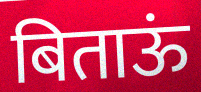
बिताऊं